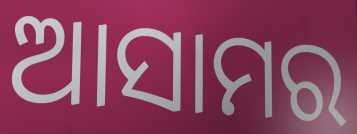
ଆସାମର